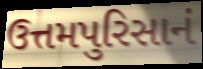
ઉત્તમપુરિસાનં